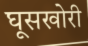
घूसखोरी